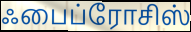
ஃபைப்ரோசிஸ்